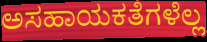
ಅಸಹಾಯಕತೆಗಳೆಲ್ಲ